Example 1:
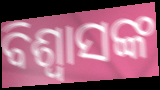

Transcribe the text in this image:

ବିଶ୍ୱାସଙ୍କ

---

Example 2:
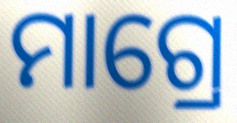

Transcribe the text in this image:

ମାଗ୍ରେ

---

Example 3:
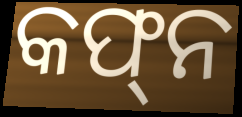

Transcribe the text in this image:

କଫ୍‌ନ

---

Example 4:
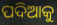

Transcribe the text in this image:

ପଦିଆକୁ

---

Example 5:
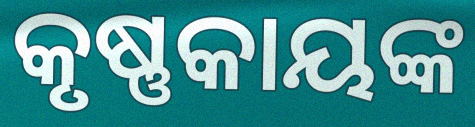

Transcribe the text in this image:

କୃଷ୍ଣକାୟଙ୍କ